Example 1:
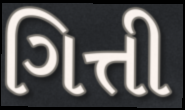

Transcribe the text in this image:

ગિત્તી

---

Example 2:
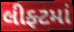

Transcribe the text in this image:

લીફ્ટમાં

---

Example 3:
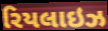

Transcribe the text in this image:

રિયલાઇઝ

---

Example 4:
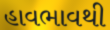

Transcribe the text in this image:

હાવભાવથી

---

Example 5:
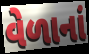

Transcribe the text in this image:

વેળાનાં